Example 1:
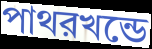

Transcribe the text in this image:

পাথরখন্ডে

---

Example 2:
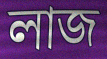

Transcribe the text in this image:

লাজ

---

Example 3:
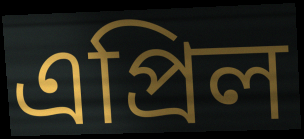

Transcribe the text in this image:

এপ্রিল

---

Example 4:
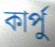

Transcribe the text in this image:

কার্পু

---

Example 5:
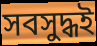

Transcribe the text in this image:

সবসুদ্ধই